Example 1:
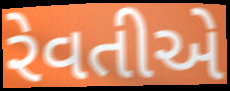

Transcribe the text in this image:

રેવતીએ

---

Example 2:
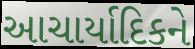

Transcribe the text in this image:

આચાર્યાદિકને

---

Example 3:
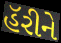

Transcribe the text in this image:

હૅરીને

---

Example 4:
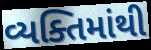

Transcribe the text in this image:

વ્યક્તિમાંથી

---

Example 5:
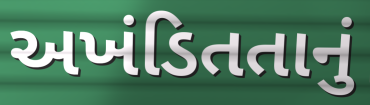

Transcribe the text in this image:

અખંડિતતાનું